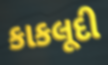
કાકલૂદી